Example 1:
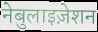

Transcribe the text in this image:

नेबुलाइज़ेशन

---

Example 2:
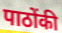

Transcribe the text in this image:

पाठोंकी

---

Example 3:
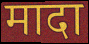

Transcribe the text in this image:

मादा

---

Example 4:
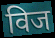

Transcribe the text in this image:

विज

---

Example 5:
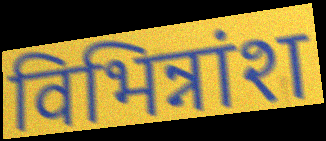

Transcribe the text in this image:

विभिन्नांश